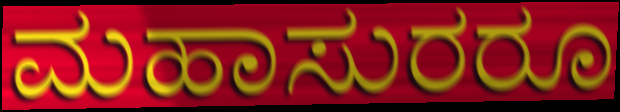
ಮಹಾಸುರರೂ